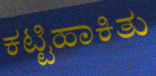
ಕಟ್ಟಿಹಾಕಿತು